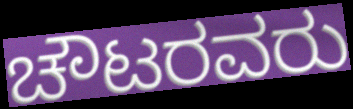
ಚೌಟರವರು